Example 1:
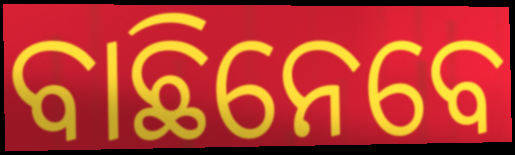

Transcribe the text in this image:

ବାଛିନେବେ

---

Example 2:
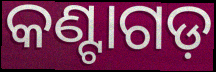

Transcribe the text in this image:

କଣ୍ଟାଗଡ଼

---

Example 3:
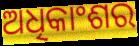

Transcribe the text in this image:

ଅଧିକାଂଶର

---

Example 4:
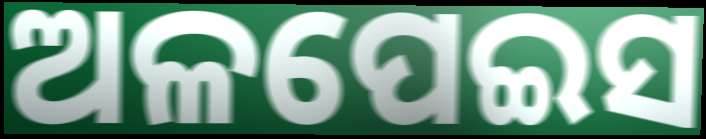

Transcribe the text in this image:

ଅଳପେଇସ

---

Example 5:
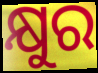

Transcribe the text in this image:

କ୍ଷୁର